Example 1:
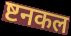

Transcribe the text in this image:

ष्टनकल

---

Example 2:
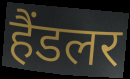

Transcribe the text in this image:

हैंडलर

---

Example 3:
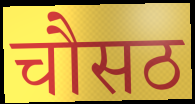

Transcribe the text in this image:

चौसठ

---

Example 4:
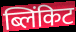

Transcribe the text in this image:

ब्लिंकिट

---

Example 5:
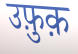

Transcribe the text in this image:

उफ़ुक़